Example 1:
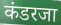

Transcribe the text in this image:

कंडरजा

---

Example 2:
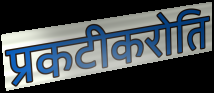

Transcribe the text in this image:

प्रकटीकरोति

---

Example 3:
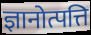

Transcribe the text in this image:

ज्ञानोत्पत्ति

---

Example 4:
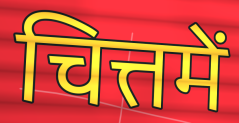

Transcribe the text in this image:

चित्तमें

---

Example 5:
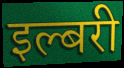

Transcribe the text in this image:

इल्बरी